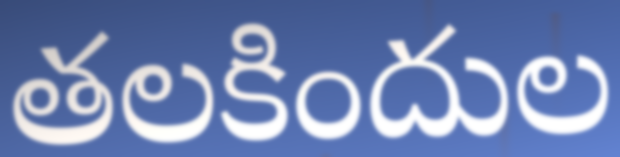
తలకిందుల